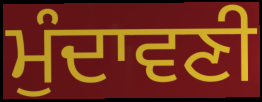
ਮੁੰਦਾਵਣੀ